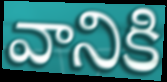
వానికి